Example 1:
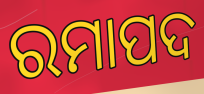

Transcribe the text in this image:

ରମାପଦ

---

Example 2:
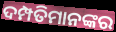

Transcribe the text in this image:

ଦମ୍ପତିମାନଙ୍କର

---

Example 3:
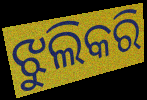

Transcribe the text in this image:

ଝୁଲିକରି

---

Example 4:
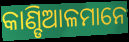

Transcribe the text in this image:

କାଣ୍ଡିଆଳମାନେ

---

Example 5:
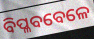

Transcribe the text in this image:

ବିପ୍ଳବବେଳେ